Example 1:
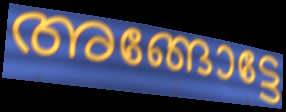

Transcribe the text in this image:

അങ്ങോട്ടേ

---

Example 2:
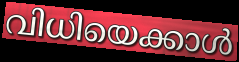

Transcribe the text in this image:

വിധിയെക്കാൾ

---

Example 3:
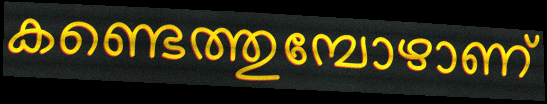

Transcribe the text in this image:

കണ്ടെത്തുമ്പോഴാണ്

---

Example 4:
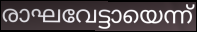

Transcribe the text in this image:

രാഘവേട്ടായെന്ന്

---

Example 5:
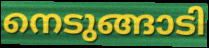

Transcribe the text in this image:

നെടുങ്ങാടി